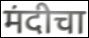
मंदीचा